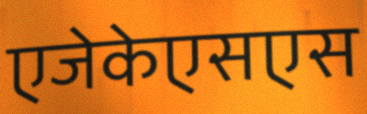
एजेकेएसएस